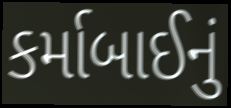
કર્માબાઈનું